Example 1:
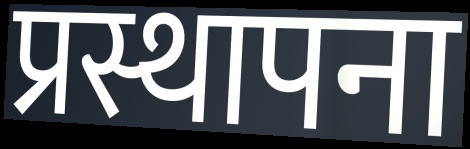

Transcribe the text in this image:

प्रस्थापना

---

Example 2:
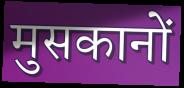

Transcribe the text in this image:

मुसकानों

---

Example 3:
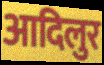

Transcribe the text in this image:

आदिलुर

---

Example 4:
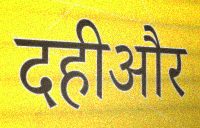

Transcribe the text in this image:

दहीऔर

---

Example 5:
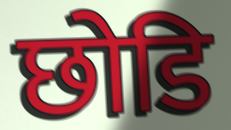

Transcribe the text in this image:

छोडि